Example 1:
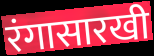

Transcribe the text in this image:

रंगासारखी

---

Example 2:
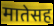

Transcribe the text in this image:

मातेसह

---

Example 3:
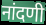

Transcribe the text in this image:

नांदणी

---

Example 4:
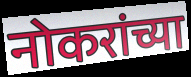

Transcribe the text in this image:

नोकरांच्या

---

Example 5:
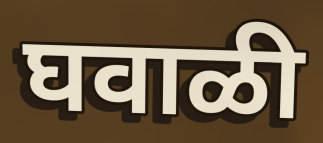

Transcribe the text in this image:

घवाळी